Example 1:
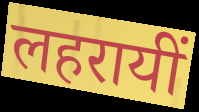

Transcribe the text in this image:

लहरायीं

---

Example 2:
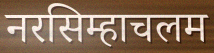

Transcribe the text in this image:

नरसिम्हाचलम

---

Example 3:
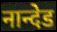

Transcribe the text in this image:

नान्देड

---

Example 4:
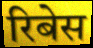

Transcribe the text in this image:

रिबेस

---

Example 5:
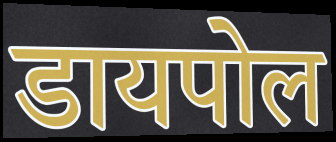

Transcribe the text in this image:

डायपोल